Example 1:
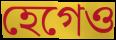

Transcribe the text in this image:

হেগেও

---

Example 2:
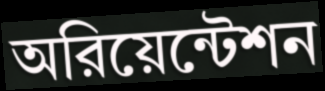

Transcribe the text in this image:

অরিয়েন্টেশন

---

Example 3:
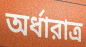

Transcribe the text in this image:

অর্ধারাত্র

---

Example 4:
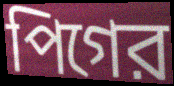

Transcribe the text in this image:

পিগের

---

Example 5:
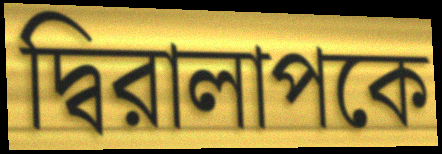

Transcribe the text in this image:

দ্বিরালাপকে